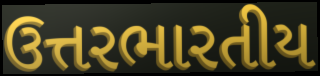
ઉત્તરભારતીય